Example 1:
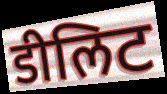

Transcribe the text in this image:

डीलिट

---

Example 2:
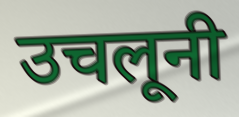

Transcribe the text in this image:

उचलूनी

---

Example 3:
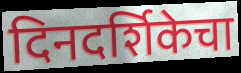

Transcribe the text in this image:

दिनदर्शिकेचा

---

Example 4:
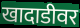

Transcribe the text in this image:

खादाडीवर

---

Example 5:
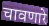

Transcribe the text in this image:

चावणारे